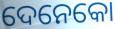
ଦେନେକୋ